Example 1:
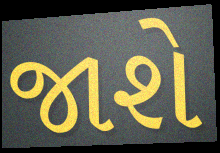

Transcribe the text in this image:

જાશે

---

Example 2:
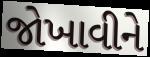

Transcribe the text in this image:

જોખાવીને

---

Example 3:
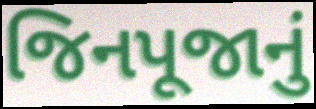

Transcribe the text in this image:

જિનપૂજાનું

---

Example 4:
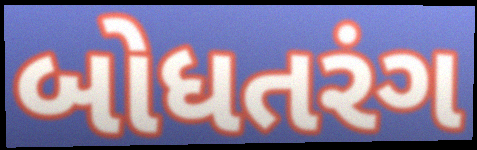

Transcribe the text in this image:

બોધતરંગ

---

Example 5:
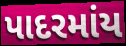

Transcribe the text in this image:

પાદરમાંય